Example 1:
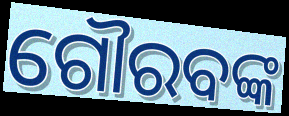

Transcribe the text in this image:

ଗୌରବଙ୍କ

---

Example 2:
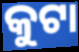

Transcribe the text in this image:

କୁଟା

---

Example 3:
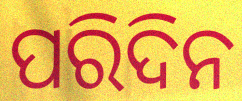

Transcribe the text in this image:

ପରିଦିନ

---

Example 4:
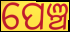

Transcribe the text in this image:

ପେଞ୍ଚ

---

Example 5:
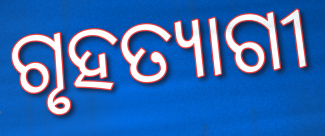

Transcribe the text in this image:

ଗୃହତ୍ୟାଗୀ